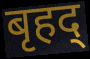
बृहद्